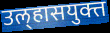
उल्हासयुक्त